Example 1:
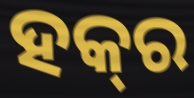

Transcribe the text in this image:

ହକ୍‌ର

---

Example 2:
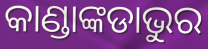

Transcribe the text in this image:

କାଣ୍ଡାଙ୍କଡାଭୁର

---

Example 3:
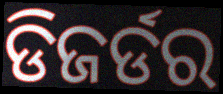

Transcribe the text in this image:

ଡିଜର୍ଡର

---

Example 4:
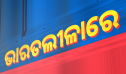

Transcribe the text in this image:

ଭାରତଲୀଳାରେ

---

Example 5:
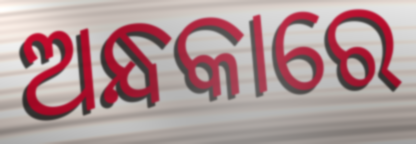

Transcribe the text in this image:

ଅନ୍ଧକାରେ